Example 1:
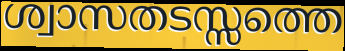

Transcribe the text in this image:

ശ്വാസതടസ്സത്തെ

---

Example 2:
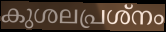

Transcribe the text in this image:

കുശലപ്രശ്നം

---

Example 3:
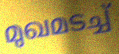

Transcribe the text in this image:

മുഖമടച്ച്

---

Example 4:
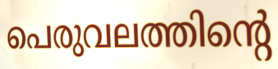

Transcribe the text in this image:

പെരുവലത്തിന്റെ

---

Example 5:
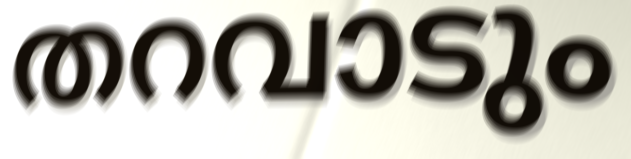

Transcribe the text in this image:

തറവാടും